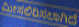
ಮೀಸಲಿರಿಸಲಾಗಿದೆ